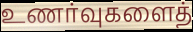
உணர்வுகளைத்